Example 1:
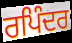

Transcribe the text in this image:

ਰਪਿੰਦਰ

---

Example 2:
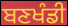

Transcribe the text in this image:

ਬਣਖੰਡੀ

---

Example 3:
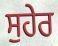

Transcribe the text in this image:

ਸੁਹੇਰ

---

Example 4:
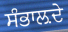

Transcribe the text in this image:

ਸੰਭਾਲ਼ਦੇ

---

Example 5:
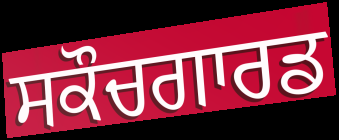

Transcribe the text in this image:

ਸਕੌਚਗਾਰਡ